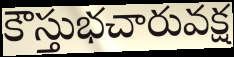
కౌస్తుభచారువక్ష